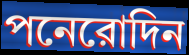
পনেরোদিন